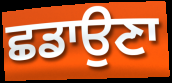
ਛਡਾਉਣਾ